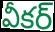
వీకర్